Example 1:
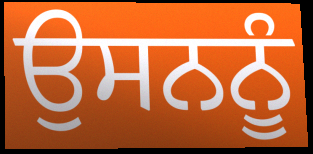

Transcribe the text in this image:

ਉਸਨਨੂੰ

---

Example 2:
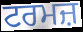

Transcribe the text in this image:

ਟਰਮਜ਼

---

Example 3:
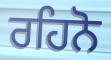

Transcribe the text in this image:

ਰਹਿਨੋ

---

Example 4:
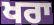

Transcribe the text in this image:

ਖਰਾ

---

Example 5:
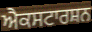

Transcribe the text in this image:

ਐਕਸਟਾਰਸ਼ਨ